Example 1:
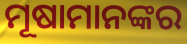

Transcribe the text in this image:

ମୂଷାମାନଙ୍କର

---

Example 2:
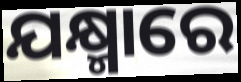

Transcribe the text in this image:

ଯକ୍ଷ୍ମାରେ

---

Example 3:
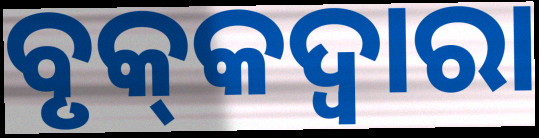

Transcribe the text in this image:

ବୃକ୍‌କଦ୍ଵାରା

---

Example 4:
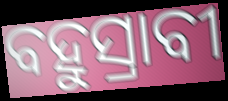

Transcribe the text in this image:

ବହୁସ୍ରାବୀ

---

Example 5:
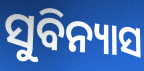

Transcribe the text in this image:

ସୁବିନ୍ୟାସ